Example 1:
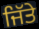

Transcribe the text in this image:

ਜਿੱਤੇ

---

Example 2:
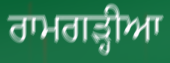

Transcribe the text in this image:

ਰਾਮਗੜ੍ਹੀਆ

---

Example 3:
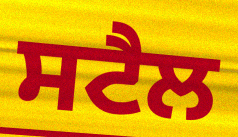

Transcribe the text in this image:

ਸਟੈਲ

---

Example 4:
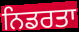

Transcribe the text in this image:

ਨਿਡਰਤਾ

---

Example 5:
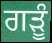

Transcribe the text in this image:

ਗੜੂੰ